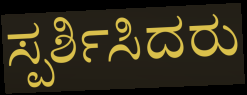
ಸ್ಪರ್ಶಿಸಿದರು